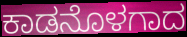
ಕಾಡನೊಳಗಾದ